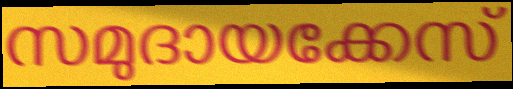
സമുദായക്കേസ്